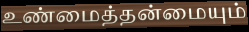
உண்மைத்தன்மையும்